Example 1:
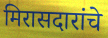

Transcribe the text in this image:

मिरासदारांचे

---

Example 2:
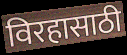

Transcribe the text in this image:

विरहासाठी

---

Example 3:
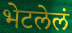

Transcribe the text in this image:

भेटलेलं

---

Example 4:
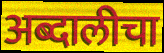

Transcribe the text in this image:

अब्दालीचा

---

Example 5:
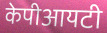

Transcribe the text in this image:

केपीआयटी